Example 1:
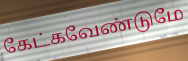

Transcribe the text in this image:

கேட்கவேண்டுமே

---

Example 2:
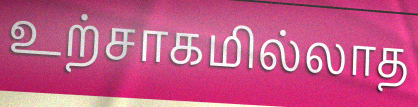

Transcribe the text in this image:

உற்சாகமில்லாத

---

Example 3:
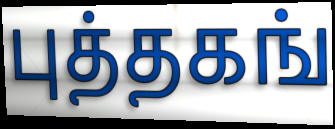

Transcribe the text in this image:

புத்தகங்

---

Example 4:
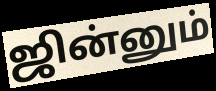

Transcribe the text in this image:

ஜின்னும்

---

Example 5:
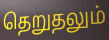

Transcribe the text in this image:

தெறுதலும்